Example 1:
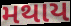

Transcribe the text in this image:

મથાય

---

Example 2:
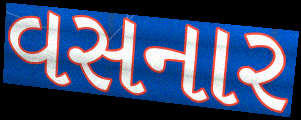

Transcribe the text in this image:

વસનાર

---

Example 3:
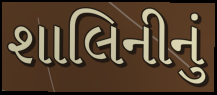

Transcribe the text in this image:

શાલિનીનું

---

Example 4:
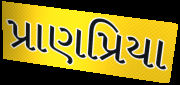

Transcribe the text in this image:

પ્રાણપ્રિયા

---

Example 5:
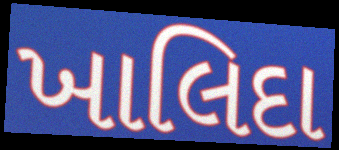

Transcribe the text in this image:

ખાલિદા